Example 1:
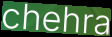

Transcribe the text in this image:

chehra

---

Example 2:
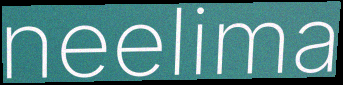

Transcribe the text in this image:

neelima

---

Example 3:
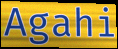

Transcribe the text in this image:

Agahi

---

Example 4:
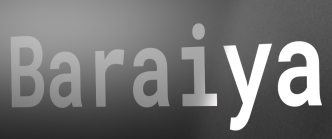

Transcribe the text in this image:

Baraiya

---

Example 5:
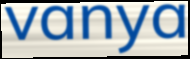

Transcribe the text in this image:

vanya